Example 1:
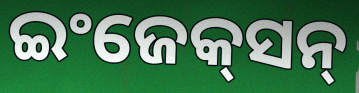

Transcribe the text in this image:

ଇଂଜେକ୍‌ସନ୍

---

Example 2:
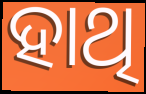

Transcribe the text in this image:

ହାଥି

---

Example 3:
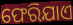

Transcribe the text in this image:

ଫେରିଯାଏ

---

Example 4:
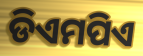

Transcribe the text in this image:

ଡିଏମପିଏ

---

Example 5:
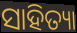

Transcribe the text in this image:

ସାହିତ୍ୟା